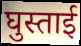
घुस्ताई